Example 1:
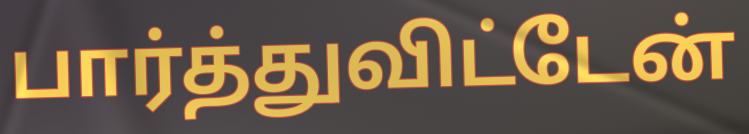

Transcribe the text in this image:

பார்த்துவிட்டேன்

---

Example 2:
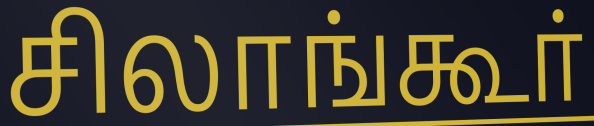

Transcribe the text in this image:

சிலாங்கூர்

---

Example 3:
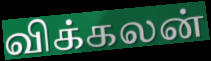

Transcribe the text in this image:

விக்கலன்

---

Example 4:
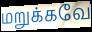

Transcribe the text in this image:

மறுக்கவே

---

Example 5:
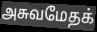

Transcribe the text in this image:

அசுவமேதக்